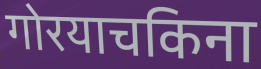
गोरयाचकिना